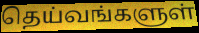
தெய்வங்களுள்